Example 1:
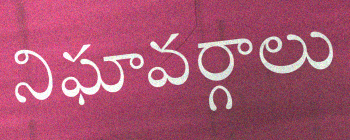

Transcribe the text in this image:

నిఘావర్గాలు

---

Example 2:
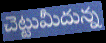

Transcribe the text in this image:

చెట్టుమీదున్న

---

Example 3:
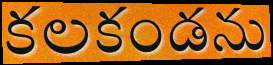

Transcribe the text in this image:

కలకండను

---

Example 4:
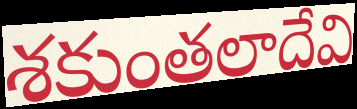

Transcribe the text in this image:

శకుంతలాదేవి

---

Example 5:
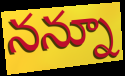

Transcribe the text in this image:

నన్నూ